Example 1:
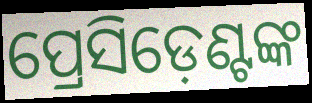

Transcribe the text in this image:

ପ୍ରେସିଡ଼େଣ୍ଟଙ୍କ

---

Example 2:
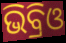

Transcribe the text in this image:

ଭିବ୍ରିଓ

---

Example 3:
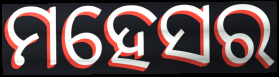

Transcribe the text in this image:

ମହେସର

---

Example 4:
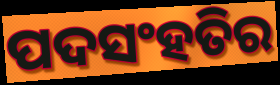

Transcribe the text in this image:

ପଦସଂହତିର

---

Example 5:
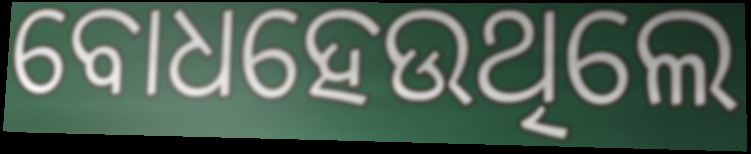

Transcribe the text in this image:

ବୋଧହେଉଥିଲେ